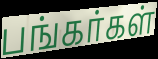
பங்கர்கள்